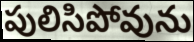
పులిసిపోవును